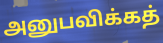
அனுபவிக்கத்